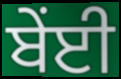
ਬੇਂਈ